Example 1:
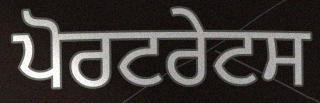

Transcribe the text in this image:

ਪੋਰਟਰੇਟਸ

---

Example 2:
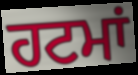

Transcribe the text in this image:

ਹਟਮਾਂ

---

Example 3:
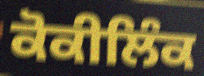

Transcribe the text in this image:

ਕੋਕੀਲਿੰਕ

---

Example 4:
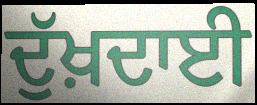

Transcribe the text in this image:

ਦੁੱਖ਼ਦਾਈ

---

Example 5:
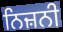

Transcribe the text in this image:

ਨਿਜ਼ਨੀ